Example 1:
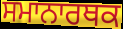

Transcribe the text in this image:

ਸਮਾਨਾਰਥਕ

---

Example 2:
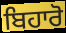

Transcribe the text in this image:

ਬਿਹਾਰੋ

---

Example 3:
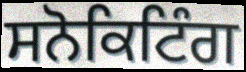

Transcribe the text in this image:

ਸਨੋਕਿਟਿੰਗ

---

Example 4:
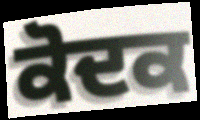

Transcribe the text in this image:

ਕੋਦਕ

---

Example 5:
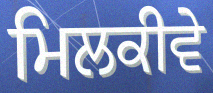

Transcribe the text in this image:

ਮਿਲਕੀਵੇ